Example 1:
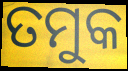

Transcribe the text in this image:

ତମୁକ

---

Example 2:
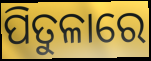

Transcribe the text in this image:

ପିତୁଳାରେ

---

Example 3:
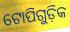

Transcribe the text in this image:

ଟୋପିଗୁଡ଼ିକ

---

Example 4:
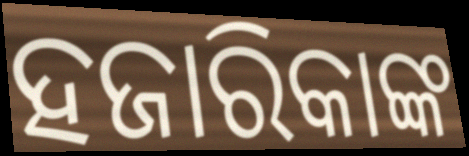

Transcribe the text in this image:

ହଜାରିକାଙ୍କ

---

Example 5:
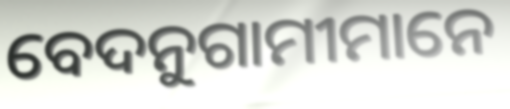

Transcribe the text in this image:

ବେଦନୁଗାମୀମାନେ